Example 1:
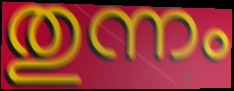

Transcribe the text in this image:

തുന്നം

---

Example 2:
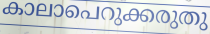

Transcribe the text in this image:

കാലാപെറുക്കരുതു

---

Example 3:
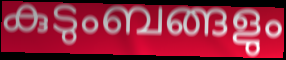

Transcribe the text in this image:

കുടുംബങ്ങളും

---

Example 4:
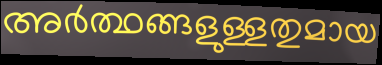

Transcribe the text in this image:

അർത്ഥങ്ങളുള്ളതുമായ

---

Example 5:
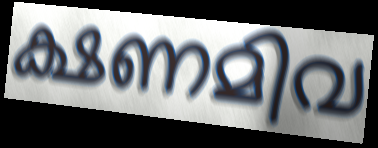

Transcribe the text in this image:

ക്ഷണമിവ